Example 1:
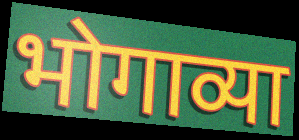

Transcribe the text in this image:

भोगाव्या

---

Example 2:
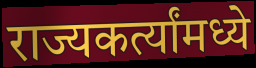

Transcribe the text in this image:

राज्यकर्त्यांमध्ये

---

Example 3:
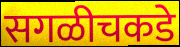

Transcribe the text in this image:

सगळीचकडे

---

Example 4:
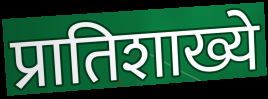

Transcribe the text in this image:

प्रातिशाख्ये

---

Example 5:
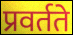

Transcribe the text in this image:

प्रवर्तते